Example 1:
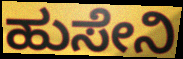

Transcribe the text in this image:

ಹುಸೇನಿ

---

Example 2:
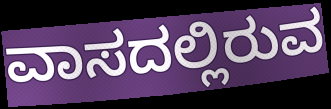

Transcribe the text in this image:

ವಾಸದಲ್ಲಿರುವ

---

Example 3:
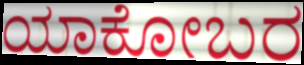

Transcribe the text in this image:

ಯಾಕೋಬರ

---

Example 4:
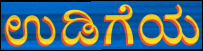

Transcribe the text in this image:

ಉಡಿಗೆಯ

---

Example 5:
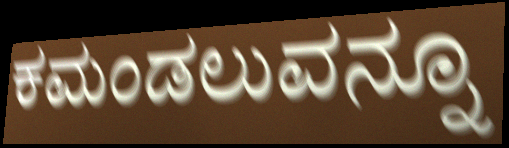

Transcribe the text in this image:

ಕಮಂಡಲುವನ್ನೂ